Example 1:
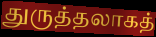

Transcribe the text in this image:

துருத்தலாகத்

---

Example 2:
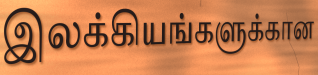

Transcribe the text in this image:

இலக்கியங்களுக்கான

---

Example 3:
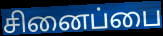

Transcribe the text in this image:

சினைப்பை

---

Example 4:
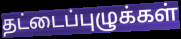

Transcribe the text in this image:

தட்டைப்புழுக்கள்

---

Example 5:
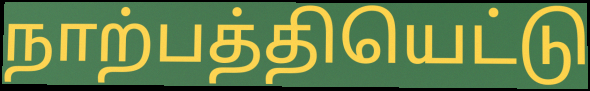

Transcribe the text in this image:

நாற்பத்தியெட்டு